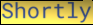
Shortly